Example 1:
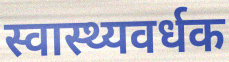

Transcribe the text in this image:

स्वास्थ्यवर्धक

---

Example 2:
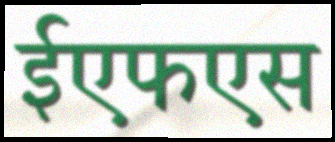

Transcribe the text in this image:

ईएफएस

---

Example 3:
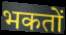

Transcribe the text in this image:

भकतों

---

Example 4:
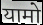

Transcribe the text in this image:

यामो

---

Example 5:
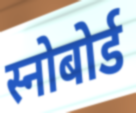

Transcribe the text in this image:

स्नोबोर्ड